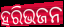
ହରିଭଜନ